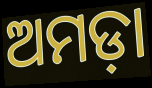
ଅମଡ଼ା